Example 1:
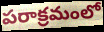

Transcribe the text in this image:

పరాక్రమంలో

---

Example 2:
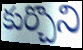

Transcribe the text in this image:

కుర్చొని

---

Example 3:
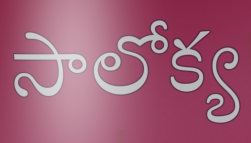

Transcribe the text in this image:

సాలోక్య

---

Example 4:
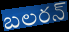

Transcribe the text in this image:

బలరన్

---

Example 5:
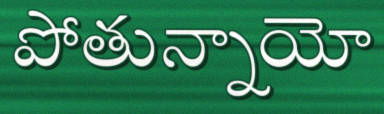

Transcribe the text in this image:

పోతున్నాయో